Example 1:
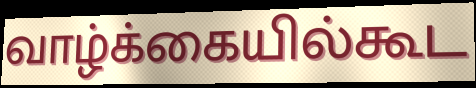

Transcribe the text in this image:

வாழ்க்கையில்கூட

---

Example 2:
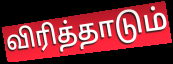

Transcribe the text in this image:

விரித்தாடும்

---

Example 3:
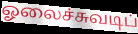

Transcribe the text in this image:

ஓலைச்சுவடிப்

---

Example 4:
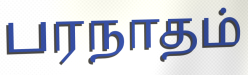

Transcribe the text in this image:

பரநாதம்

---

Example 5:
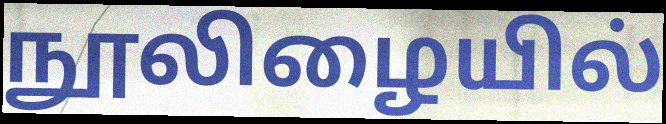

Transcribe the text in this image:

நூலிழையில்